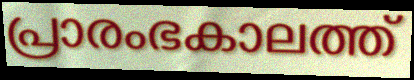
പ്രാരംഭകാലത്ത്